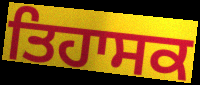
ਤਿਹਾਸਕ